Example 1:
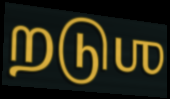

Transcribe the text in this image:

றடுஶ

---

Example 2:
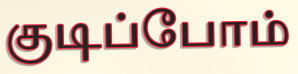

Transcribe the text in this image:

குடிப்போம்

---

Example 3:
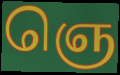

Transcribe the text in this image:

ஞெ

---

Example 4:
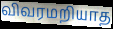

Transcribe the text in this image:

விவரமறியாத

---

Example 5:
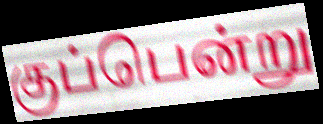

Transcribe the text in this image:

குப்பென்று